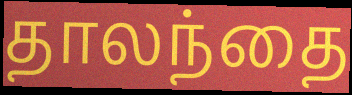
தாலந்தை